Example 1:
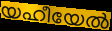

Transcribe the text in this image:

യഹീയേൽ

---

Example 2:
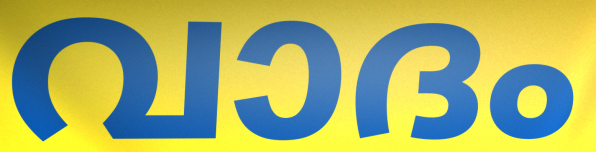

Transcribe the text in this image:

വാദം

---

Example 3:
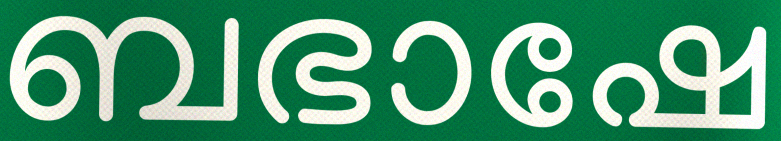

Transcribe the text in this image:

ബഭാഷേ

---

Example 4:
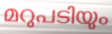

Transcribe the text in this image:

മറുപടിയും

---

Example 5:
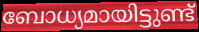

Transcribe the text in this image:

ബോധ്യമായിട്ടുണ്ട്